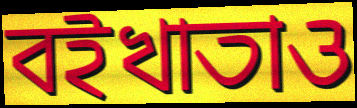
বইখাতাও